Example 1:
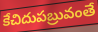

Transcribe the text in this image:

కేచిదుపబ్రువంతే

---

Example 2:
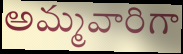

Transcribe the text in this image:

అమ్మవారిగా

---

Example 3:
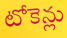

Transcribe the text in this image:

టోకెన్లు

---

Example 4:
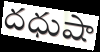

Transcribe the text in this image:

దధుషా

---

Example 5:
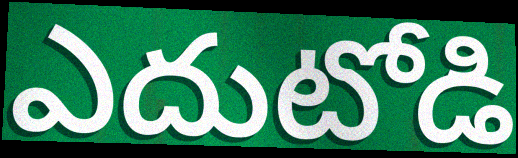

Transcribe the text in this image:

ఎదుటోడి